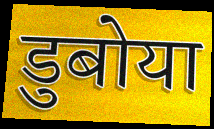
डुबोया